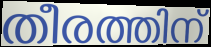
തീരത്തിന്